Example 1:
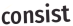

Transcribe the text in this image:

consist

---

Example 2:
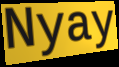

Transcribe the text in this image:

Nyay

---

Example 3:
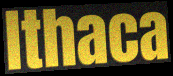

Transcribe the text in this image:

Ithaca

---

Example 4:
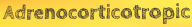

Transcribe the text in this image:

Adrenocorticotropic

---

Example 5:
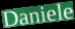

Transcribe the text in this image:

Daniele